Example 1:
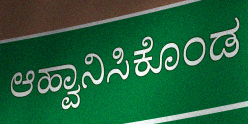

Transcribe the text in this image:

ಆಹ್ವಾನಿಸಿಕೊಂಡ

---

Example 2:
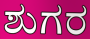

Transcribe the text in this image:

ಶುಗರ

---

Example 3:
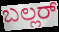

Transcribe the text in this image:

ಬಲ್ಲರ್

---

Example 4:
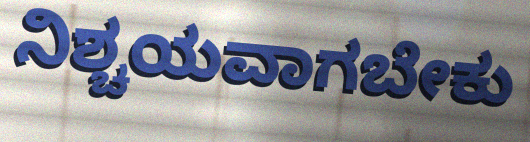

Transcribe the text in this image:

ನಿಶ್ಚಯವಾಗಬೇಕು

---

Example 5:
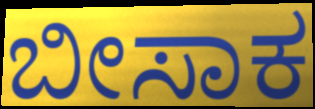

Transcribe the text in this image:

ಬೀಸಾಕ